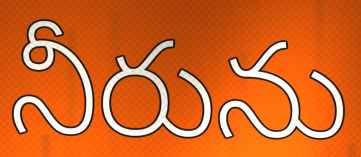
నీరును